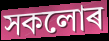
সকলোৰ